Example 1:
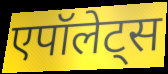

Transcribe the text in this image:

एपॉलेट्स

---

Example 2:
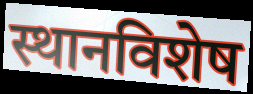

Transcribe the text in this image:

स्थानविशेष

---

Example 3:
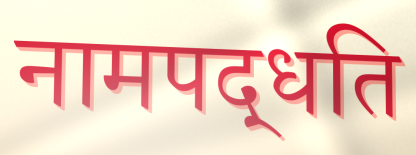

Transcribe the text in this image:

नामपद्धति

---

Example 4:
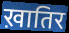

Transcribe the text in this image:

ख़ातिर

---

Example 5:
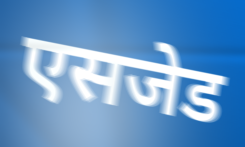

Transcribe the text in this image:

एसजेड